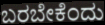
ಬರಬೇಕೆಂದು